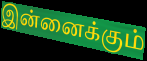
இன்னைக்கும்